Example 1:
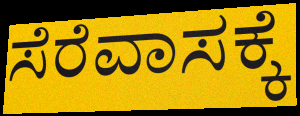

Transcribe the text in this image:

ಸೆರೆವಾಸಕ್ಕೆ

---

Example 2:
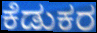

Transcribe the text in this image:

ಕೆಡುಕರ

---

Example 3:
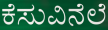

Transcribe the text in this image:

ಕೆಸುವಿನೆಲೆ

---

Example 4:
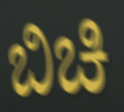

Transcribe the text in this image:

ಬಿಚಿ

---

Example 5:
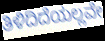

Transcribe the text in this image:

ತಿಳಿದಿದೆಯಲ್ಲವೇ